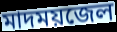
মাদময়জেল